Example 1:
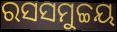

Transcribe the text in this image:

ରସସମୁଚ୍ଚୟ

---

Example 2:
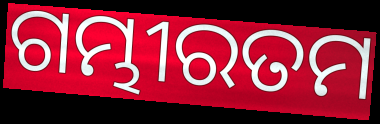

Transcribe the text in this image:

ଗମ୍ଭୀରତମ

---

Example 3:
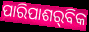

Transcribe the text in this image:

ପାରିପାଶର୍‌ବିକ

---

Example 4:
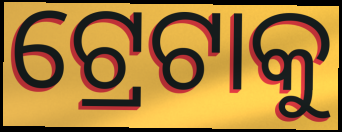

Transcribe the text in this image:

ଟ୍ରେଟାକୁ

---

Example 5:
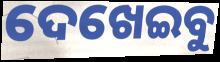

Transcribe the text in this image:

ଦେଖେଇବୁ